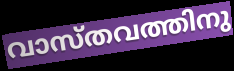
വാസ്തവത്തിനു